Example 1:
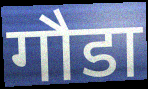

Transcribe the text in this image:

गौडा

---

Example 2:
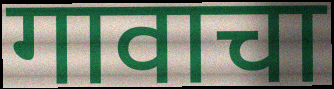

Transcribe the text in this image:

गावाचा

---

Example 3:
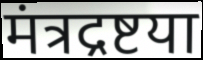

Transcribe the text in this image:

मंत्रद्रष्टया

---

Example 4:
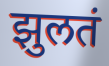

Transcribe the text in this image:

झुलतं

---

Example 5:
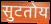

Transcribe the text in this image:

सुटतोय